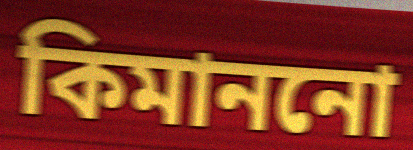
কিমাননো